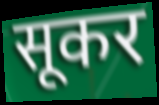
सूकर